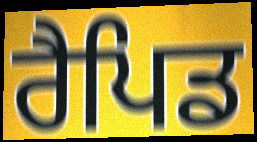
ਰੈਪਿਡ